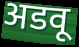
अडवू